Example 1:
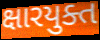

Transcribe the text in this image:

ક્ષારયુક્ત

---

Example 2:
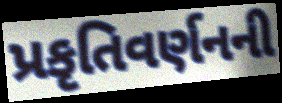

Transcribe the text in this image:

પ્રકૃતિવર્ણનની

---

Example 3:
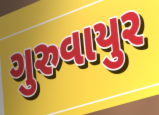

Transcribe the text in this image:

ગુરુવાયુર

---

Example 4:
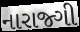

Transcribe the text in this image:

નારાજ્ગી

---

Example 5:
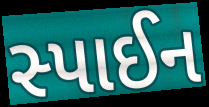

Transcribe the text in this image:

સ્પાઈન